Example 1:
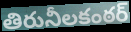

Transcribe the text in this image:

తిరునీలకంఠర్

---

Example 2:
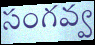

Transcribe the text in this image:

సంగవ్వ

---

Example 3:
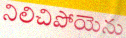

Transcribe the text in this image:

నిలిచిపోయెను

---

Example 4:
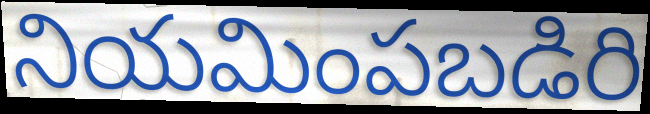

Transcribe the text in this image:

నియమింపబడిరి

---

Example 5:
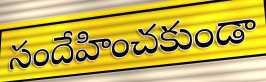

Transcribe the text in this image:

సందేహించకుండా